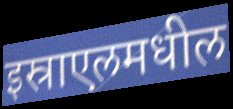
इस्राएलमधील